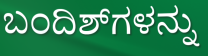
ಬಂದಿಶ್‌ಗಳನ್ನು